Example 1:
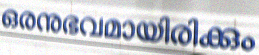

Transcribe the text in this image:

ഒരനുഭവമായിരിക്കും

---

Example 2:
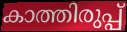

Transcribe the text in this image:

കാത്തിരുപ്പ്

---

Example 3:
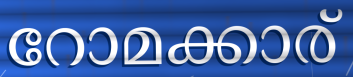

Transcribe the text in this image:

റോമക്കാര്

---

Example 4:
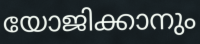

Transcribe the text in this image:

യോജിക്കാനും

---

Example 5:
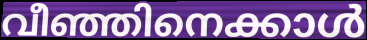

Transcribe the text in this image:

വീഞ്ഞിനെക്കാൾ